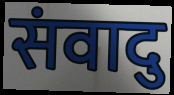
संवादु